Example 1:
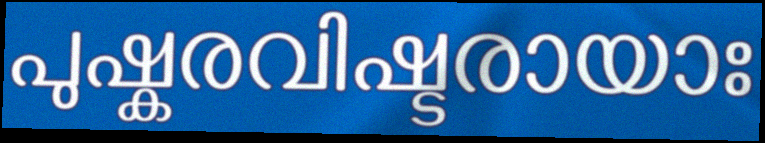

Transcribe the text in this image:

പുഷ്കരവിഷ്ടരായാഃ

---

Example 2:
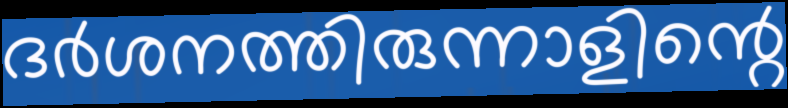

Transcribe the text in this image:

ദർശനത്തിരുന്നാളിന്റെ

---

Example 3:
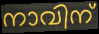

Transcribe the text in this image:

നാവിന്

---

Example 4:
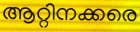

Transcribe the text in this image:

ആറ്റിനക്കരെ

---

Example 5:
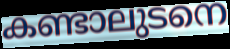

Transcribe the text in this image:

കണ്ടാലുടനെ